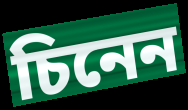
চিনেন